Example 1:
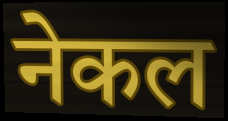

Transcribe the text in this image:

नेकल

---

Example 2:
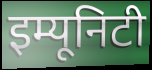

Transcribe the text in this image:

इम्‍यूनिटी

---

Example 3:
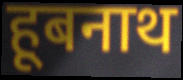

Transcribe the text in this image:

हूबनाथ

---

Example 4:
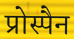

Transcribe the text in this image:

प्रोस्पैन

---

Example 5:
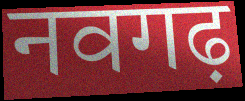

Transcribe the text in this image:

नवगढ़